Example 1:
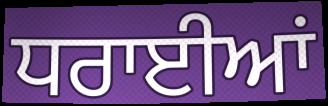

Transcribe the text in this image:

ਧਰਾਈਆਂ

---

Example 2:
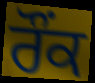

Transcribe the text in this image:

ਰੌਂਕ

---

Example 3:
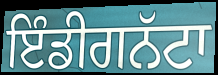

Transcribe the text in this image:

ਇੰਡੀਗਨੱਟਾ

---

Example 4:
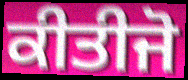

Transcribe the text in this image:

ਕੀਤੀਜੋ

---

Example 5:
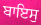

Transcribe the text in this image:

ਬਾਇਸੁ